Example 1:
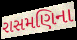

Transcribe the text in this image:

રાસમણિના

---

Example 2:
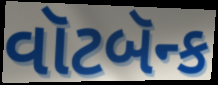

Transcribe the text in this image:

વૉટબૅન્ક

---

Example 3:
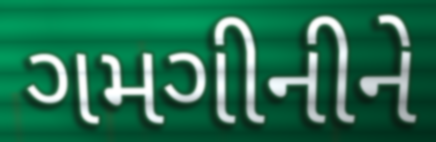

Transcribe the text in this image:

ગમગીનીને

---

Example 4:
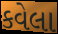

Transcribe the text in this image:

કવેલા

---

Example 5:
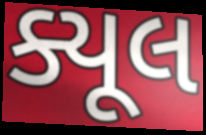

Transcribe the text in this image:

ક્યૂલ